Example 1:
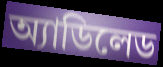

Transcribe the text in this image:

অ্যাডিলেড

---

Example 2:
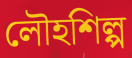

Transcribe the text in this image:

লৌহশিল্প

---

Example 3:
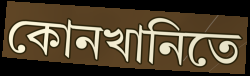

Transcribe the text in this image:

কোনখানিতে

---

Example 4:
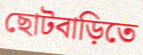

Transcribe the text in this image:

ছোটবাড়িতে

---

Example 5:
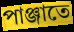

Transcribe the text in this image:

পাঞ্জাতে